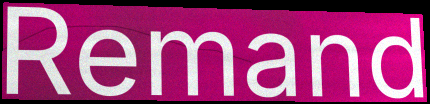
Remand